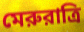
মেরুরাত্রি